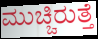
ಮುಚ್ಚಿರುತ್ತೆ